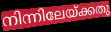
നിന്നിലേയ്ക്കതു